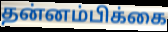
தன்னம்பிக்கை